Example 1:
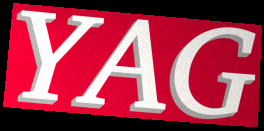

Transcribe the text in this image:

YAG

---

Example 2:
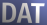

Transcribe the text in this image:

DAT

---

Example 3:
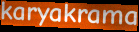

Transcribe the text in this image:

karyakrama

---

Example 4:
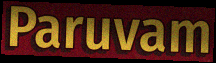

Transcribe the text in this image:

Paruvam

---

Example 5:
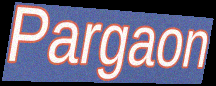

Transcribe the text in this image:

Pargaon